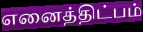
எனைத்திட்பம்